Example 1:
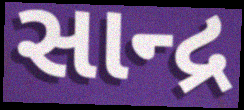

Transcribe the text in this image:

સાન્દ્ર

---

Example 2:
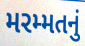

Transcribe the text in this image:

મરમ્મતનું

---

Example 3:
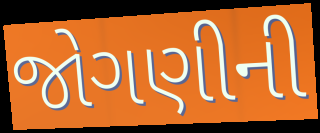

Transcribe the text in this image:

જોગણીની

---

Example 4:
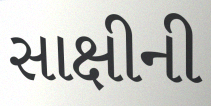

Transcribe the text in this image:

સાક્ષીની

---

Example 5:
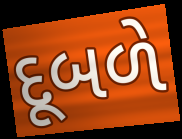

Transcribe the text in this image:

દૂબળે